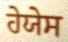
ਹੇਯੇਸ